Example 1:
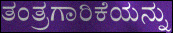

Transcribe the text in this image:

ತಂತ್ರಗಾರಿಕೆಯನ್ನು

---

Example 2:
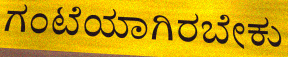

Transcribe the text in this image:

ಗಂಟೆಯಾಗಿರಬೇಕು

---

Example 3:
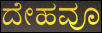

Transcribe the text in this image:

ದೇಹವೂ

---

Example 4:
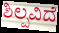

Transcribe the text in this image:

ಶಿಲ್ಪವಿದೆ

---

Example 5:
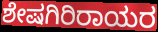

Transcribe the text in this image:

ಶೇಷಗಿರಿರಾಯರ